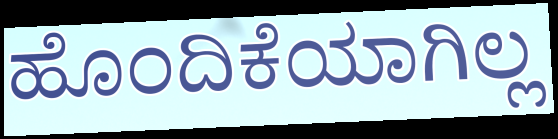
ಹೊಂದಿಕೆಯಾಗಿಲ್ಲ